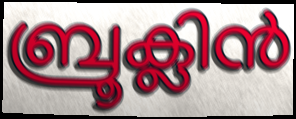
ബ്രൂക്ലിൻ